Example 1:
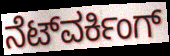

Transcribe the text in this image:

ನೆಟ್‌ವರ್ಕಿಂಗ್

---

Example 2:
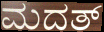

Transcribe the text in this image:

ಮದತ್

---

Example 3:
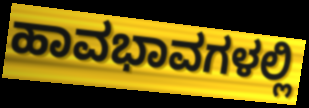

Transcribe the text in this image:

ಹಾವಭಾವಗಳಲ್ಲಿ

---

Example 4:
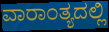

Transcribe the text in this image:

ವಾರಾಂತ್ಯದಲ್ಲಿ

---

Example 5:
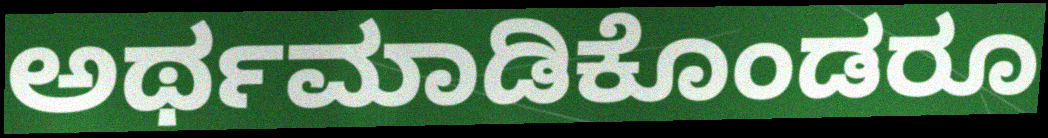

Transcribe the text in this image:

ಅರ್ಥಮಾಡಿಕೊಂಡರೂ